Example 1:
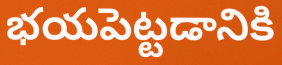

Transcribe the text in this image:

భయపెట్టడానికి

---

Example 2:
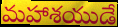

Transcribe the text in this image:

మహాశయుడే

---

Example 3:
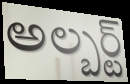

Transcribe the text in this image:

అల్బర్ట్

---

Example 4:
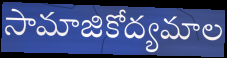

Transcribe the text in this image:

సామాజికోద్యమాల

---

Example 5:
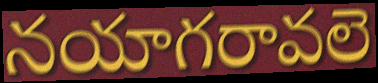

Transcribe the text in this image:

నయాగరావలె